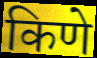
किणे